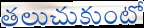
తలుచుకుంటో